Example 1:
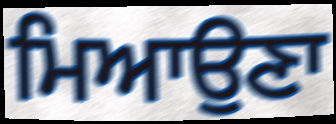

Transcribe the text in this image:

ਮਿਆਉਣਾ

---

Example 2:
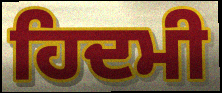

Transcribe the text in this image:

ਹਿਦਮੀ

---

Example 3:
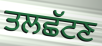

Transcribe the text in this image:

ਤਲਛੱਟਣ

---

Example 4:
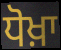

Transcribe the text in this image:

ਧੋਖ਼ਾ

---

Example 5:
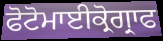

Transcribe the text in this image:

ਫੋਟੋਮਾਈਕ੍ਰੋਗ੍ਰਾਫ